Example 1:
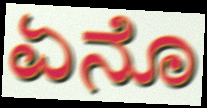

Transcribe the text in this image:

ಏನೊ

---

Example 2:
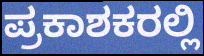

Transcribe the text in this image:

ಪ್ರಕಾಶಕರಲ್ಲಿ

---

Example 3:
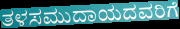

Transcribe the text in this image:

ತಳಸಮುದಾಯದವರಿಗೆ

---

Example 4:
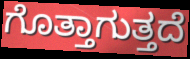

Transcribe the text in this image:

ಗೊತ್ತಾಗುತ್ತದೆ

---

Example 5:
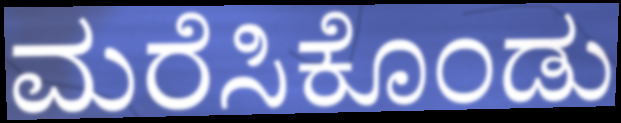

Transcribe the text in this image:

ಮರೆಸಿಕೊಂಡು